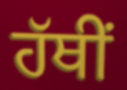
ਹੱਥੀਂ